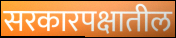
सरकारपक्षातील